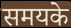
समयके